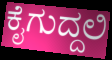
ಕೈಗುದ್ದಲಿ